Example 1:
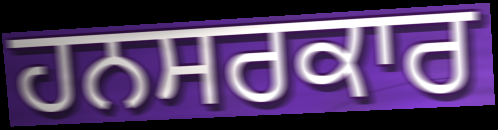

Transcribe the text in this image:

ਹਨਸਰਕਾਰ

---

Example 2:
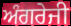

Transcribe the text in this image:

ਅੰਗਰੇਜੀ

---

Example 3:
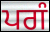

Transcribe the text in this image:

ਪਗੰ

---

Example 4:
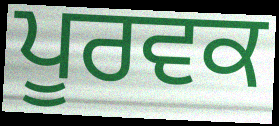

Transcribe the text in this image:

ਪੂਰਵਕ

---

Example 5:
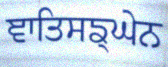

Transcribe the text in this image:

ਞਾਤਿਸਙ੍ਘੇਨ